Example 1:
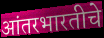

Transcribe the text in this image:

आंतरभारतीचे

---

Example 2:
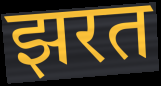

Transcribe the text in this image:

झरत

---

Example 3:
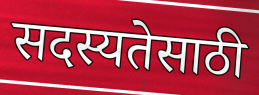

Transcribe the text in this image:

सदस्यतेसाठी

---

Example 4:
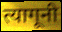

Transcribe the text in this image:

त्यागूनी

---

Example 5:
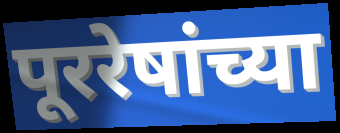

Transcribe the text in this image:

पूररेषांच्या